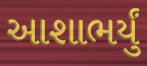
આશાભર્યું